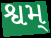
શ્વમ્